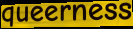
queerness